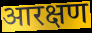
आरक्षण